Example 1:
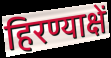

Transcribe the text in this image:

हिरण्याक्षें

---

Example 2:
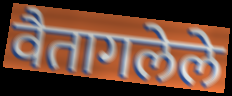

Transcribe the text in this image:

वैतागलेले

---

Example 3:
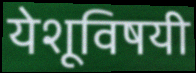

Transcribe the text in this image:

येशूविषयी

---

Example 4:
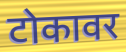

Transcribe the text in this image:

टोकावर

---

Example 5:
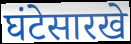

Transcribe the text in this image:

घंटेसारखे